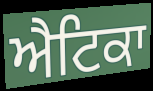
ਐਟਿਕਾ